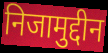
निजामुद्दीन